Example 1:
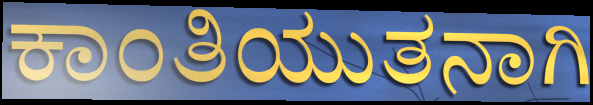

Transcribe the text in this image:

ಕಾಂತಿಯುತನಾಗಿ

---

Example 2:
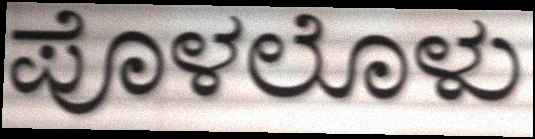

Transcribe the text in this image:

ಪೊಳಲೊಳು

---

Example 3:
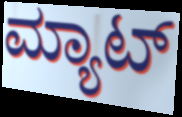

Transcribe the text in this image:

ಮ್ಯಾಟ್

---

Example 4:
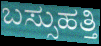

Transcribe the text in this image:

ಬಸ್ಸುಹತ್ತಿ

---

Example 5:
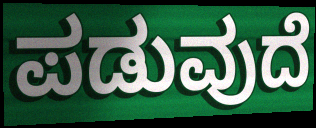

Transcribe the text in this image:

ಪಡುವುದೆ